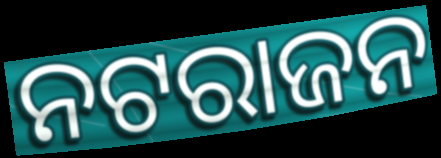
ନଟରାଜନ